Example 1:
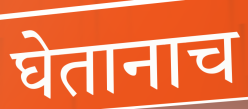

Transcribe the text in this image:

घेतानाच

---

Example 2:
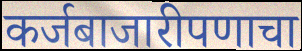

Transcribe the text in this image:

कर्जबाजारीपणाचा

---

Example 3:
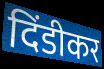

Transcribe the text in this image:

दिंडीकर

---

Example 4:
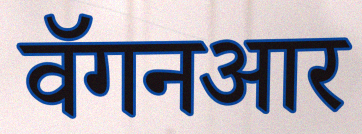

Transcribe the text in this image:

वॅगनआर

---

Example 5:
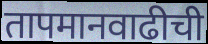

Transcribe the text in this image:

तापमानवाढीची